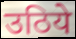
उठिये